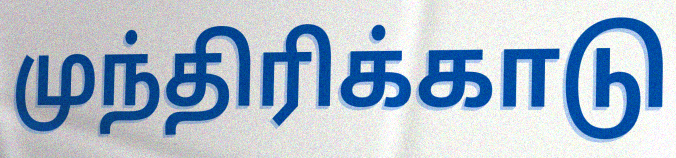
முந்திரிக்காடு